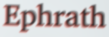
Ephrath